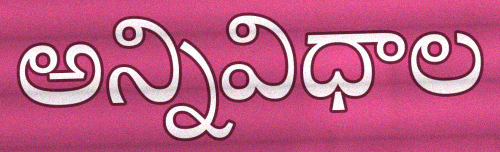
అన్నివిధాల